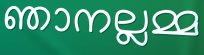
ഞാനല്ലമ്മ